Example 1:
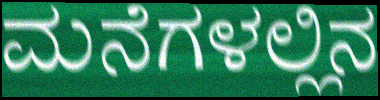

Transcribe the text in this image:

ಮನೆಗಳಲ್ಲಿನ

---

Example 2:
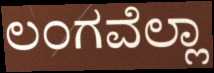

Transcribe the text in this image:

ಲಂಗವೆಲ್ಲಾ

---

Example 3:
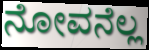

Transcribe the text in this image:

ನೋವನೆಲ್ಲ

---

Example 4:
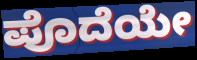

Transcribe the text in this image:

ಪೊದೆಯೇ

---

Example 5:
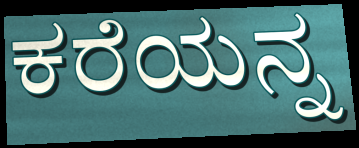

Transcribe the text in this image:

ಕರೆಯನ್ನ